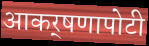
आकर्षणापोटी